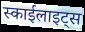
स्काईलाइट्स